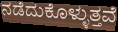
ನಡೆದುಕೊಳ್ಳುತ್ತವೆ